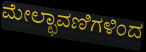
ಮೇಲ್ಛಾವಣಿಗಳಿಂದ